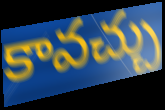
కావచ్చు